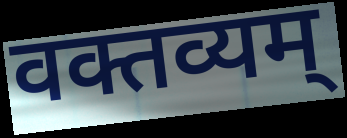
वक्तव्यम्